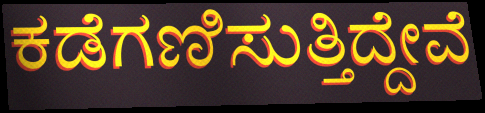
ಕಡೆಗಣಿಸುತ್ತಿದ್ದೇವೆ